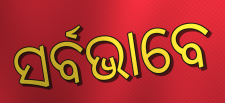
ସର୍ବଭାବେ